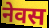
नेवस